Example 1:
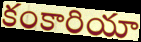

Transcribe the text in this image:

కంకారియా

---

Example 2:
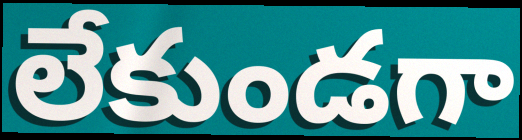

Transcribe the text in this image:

లేకుండగా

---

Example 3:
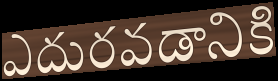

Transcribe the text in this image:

ఎదురవడానికి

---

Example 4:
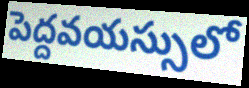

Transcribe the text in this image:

పెద్దవయస్సులో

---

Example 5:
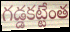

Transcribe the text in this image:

గడ్డకట్టేంత